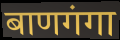
बाणगंगा